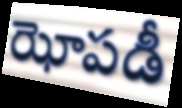
ఝోపడీ